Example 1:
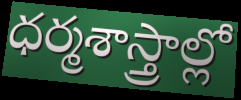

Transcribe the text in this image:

ధర్మశాస్త్రాల్లో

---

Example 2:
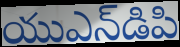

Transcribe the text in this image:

యుఎన్‌డిపి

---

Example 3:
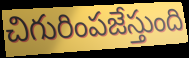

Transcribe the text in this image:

చిగురింపజేస్తుంది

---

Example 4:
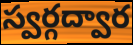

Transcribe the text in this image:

స్వర్గద్వార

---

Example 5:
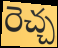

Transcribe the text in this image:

రెచ్చ